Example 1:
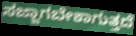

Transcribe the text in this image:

ಸಜ್ಜಾಗಬೇಕಾಗುತ್ತದೆ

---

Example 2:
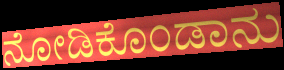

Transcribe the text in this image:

ನೋಡಿಕೊಂಡಾನು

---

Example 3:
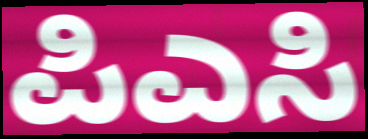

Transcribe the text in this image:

ಪಿಎಸಿ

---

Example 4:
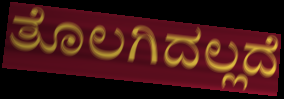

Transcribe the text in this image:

ತೊಲಗಿದಲ್ಲದೆ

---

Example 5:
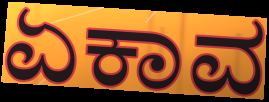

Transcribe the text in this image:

ಏಕಾವ